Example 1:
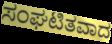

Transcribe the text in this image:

ಸಂಘಟಿತವಾದ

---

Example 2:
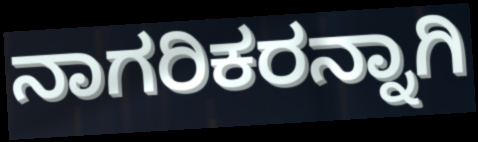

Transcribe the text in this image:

ನಾಗರಿಕರನ್ನಾಗಿ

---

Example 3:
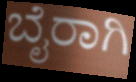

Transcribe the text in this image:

ಬೈರಾಗಿ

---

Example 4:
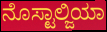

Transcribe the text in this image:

ನೊಸ್ಟಾಲ್ಜಿಯಾ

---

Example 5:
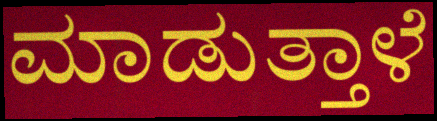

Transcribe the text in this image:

ಮಾಡುತ್ತಾಳೆ